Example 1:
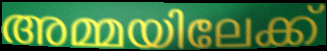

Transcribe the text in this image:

അമ്മയിലേക്ക്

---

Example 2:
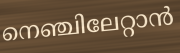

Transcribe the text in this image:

നെഞ്ചിലേറ്റാൻ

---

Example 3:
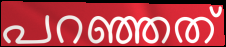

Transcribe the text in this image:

പറഞ്ഞത്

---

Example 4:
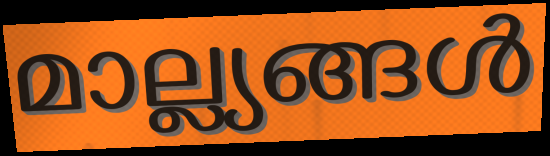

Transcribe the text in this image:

മാല്ല്യങ്ങൾ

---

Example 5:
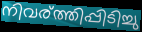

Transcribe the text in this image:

നിവര്ത്തിപ്പിടിച്ചു